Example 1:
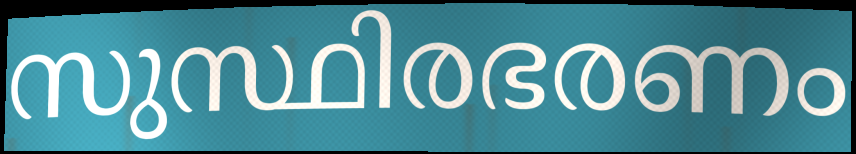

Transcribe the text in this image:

സുസ്ഥിരഭരണം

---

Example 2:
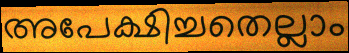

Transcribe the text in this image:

അപേക്ഷിച്ചതെല്ലാം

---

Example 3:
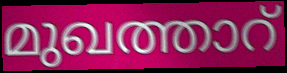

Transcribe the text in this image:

മുഖത്താറ്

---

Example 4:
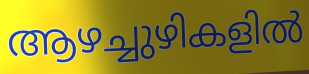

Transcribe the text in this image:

ആഴച്ചുഴികളിൽ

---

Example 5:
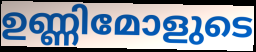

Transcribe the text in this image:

ഉണ്ണിമോളുടെ